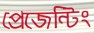
প্রেজেন্টিং